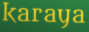
karaya